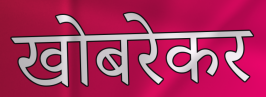
खोबरेकर